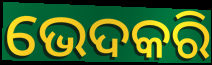
ଭେଦକରି